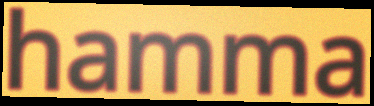
hamma